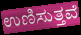
ಉಣಿಸುತ್ತವೆ